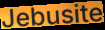
Jebusite